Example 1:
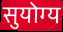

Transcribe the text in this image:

सुयोग्य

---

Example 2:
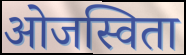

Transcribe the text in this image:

ओजस्विता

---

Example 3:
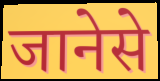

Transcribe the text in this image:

जानेसे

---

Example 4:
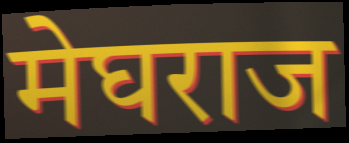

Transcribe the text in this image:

मेघराज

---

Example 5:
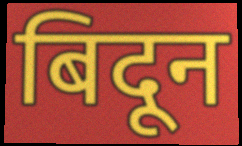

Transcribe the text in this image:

बिदून